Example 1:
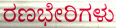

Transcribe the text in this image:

ರಣಭೇರಿಗಳು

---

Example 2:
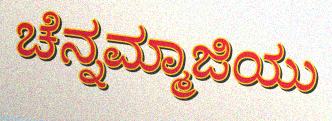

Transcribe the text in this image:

ಚೆನ್ನಮ್ಮಾಜಿಯು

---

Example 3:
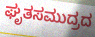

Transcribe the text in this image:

ಘೃತಸಮುದ್ರದ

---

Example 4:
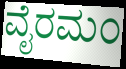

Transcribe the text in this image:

ವೈರಮಂ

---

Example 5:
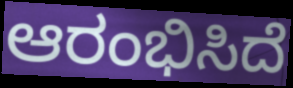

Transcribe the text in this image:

ಆರಂಭಿಸಿದೆ